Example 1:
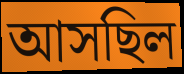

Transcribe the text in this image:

আসছিল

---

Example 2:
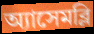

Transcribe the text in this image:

অ্যাসেমব্লি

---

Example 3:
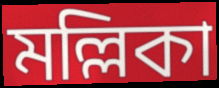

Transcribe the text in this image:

মল্লিকা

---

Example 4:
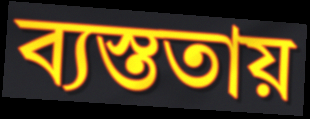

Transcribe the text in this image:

ব্যস্ততায়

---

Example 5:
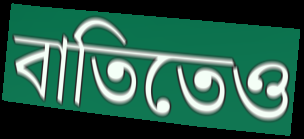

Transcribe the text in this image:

বাতিতেও